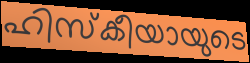
ഹിസ്കീയായുടെ